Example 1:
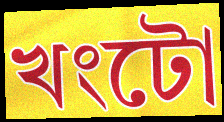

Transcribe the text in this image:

খংটো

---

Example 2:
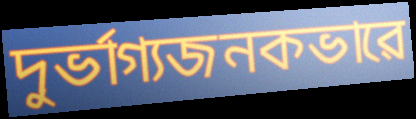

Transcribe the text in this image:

দুৰ্ভাগ্যজনকভাৱে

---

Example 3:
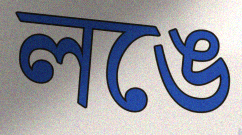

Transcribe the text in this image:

লঙে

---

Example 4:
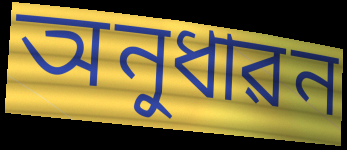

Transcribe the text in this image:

অনুধাৱন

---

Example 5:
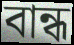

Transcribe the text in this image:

বান্ধ